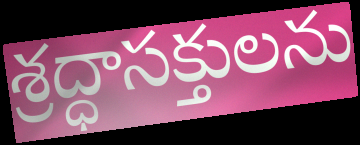
శ్రద్ధాసక్తులను